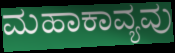
ಮಹಾಕಾವ್ಯವು